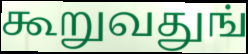
கூறுவதுங்